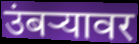
उंबर्‍यावर